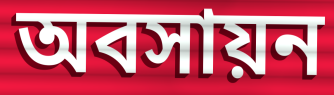
অবসায়ন